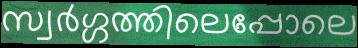
സ്വർഗ്ഗത്തിലെപ്പോലെ